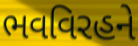
ભવવિરહને